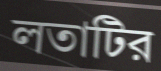
লতাটির